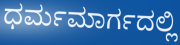
ಧರ್ಮಮಾರ್ಗದಲ್ಲಿ